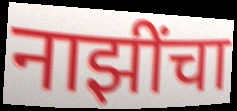
नाझींचा